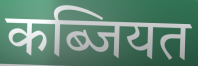
कब्जियत